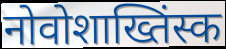
नोवोशाख्तिंस्क